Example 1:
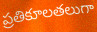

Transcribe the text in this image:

ప్రతికూలతలుగా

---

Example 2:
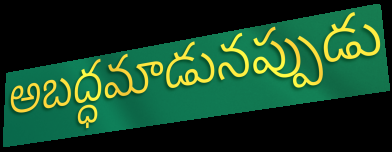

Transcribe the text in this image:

అబద్ధమాడునప్పుడు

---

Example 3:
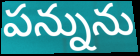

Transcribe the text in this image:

పన్నును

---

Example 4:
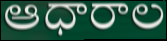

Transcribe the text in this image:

ఆధారాల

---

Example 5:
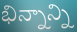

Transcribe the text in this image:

భిన్నాన్ని